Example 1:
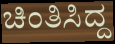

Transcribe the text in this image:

ಚಿಂತಿಸಿದ್ದ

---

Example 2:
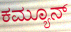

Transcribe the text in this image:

ಕಮ್ಯೂನ್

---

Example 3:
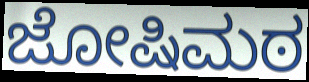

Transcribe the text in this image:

ಜೋಷಿಮಠ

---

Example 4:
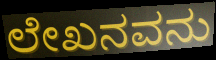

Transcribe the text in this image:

ಲೇಖನವನು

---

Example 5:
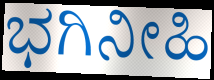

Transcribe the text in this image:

ಭಗಿನೀಹಿ